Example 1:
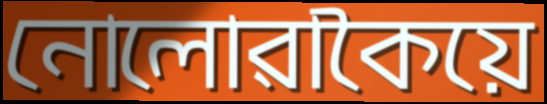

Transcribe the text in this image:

নোলোৱাকৈয়ে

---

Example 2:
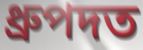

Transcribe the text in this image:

ধ্ৰুপদত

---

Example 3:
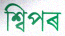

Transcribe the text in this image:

শ্বিপৰ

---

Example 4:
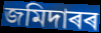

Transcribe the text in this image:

জমিদাৰৰ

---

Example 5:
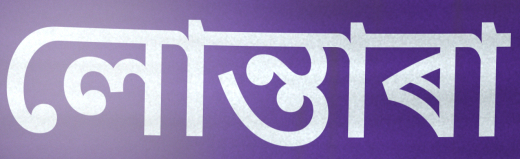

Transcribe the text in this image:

লোন্তাৰা